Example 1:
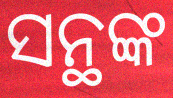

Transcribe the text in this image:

ସନ୍ଥଙ୍କ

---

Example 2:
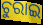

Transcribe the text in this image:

ଚୁରାଇ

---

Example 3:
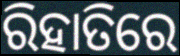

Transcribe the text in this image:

ରିହାତିରେ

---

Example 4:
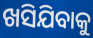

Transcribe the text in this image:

ଖସିଯିବାକୁ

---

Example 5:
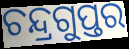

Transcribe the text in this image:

ଚନ୍ଦ୍ରଗୁପ୍ତର